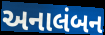
અનાલંબન